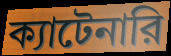
ক্যাটেনারি